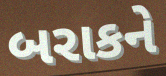
બરાકને